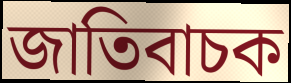
জাতিবাচক